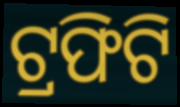
ଟ୍ରଫିଟି